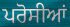
ਪਰੋਸੀਆਂ